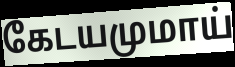
கேடயமுமாய்